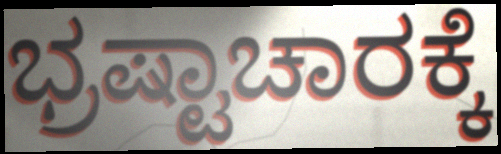
ಭ್ರಷ್ಟಾಚಾರಕ್ಕೆ